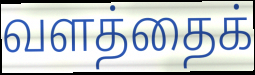
வளத்தைக்